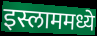
इस्लाममध्ये